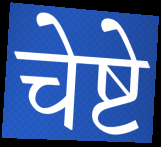
चेष्टे